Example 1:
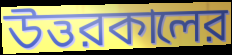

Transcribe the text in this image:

উত্তরকালের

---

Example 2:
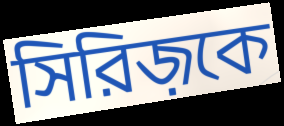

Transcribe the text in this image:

সিরিজ়কে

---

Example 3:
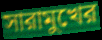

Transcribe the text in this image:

সারামুখের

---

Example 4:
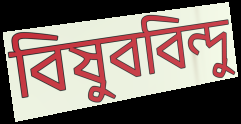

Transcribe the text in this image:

বিষুববিন্দু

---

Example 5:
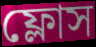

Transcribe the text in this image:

ফ্লোস